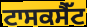
ਟਾਸਕਸੈੱਟ